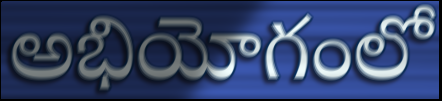
అభియోగంలో